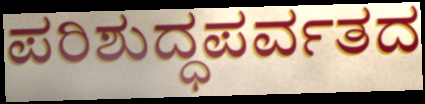
ಪರಿಶುದ್ಧಪರ್ವತದ